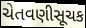
ચેતવણીસૂચક